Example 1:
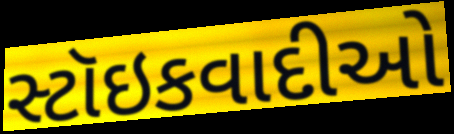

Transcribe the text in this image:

સ્ટૉઇકવાદીઓ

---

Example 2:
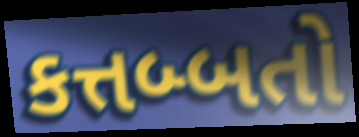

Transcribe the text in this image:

કત્તબ્બતો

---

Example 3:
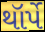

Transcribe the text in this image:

થૉર્પે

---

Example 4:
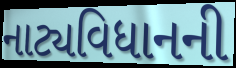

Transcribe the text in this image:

નાટ્યવિધાનની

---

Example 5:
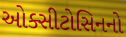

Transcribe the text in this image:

ઓક્સીટોસિનનો